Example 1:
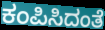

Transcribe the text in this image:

ಕಂಪಿಸಿದಂತೆ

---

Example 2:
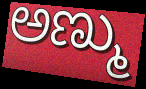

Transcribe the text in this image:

ಅಣ್ಮು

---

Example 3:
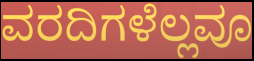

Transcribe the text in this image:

ವರದಿಗಳೆಲ್ಲವೂ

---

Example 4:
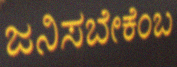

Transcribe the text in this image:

ಜನಿಸಬೇಕೆಂಬ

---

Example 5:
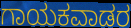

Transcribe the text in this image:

ಗಾಯಕವಾಡರ